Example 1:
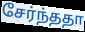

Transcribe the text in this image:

சேர்ந்ததா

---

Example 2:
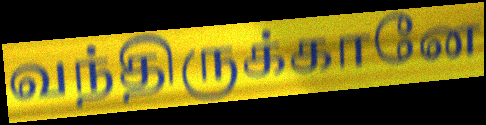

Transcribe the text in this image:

வந்திருக்கானே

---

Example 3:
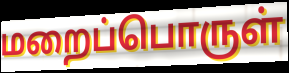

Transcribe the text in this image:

மறைப்பொருள்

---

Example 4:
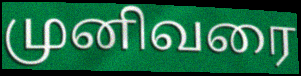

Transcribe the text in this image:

முனிவரை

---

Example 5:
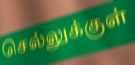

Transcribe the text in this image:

செல்லுக்குள்